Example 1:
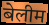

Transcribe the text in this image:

बेलीम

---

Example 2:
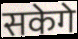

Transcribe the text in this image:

सकेगे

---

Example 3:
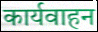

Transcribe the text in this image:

कार्यवाहन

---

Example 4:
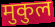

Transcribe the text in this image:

मुकुल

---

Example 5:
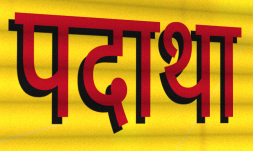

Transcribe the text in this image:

पदाथा